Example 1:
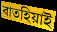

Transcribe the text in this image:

বাতহিয়াই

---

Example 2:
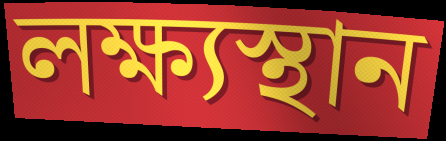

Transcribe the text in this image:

লক্ষ্যস্থান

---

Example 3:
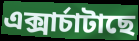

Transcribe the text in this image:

এক্সাৰ্চাটাছে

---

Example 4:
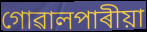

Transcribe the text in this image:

গোৱালপাৰীয়া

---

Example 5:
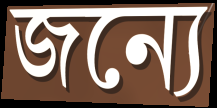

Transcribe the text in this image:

জন্যে